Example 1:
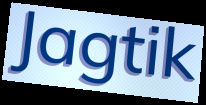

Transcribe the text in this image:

Jagtik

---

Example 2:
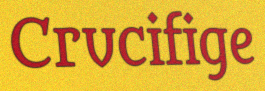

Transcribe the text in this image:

Crucifige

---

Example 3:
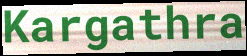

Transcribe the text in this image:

Kargathra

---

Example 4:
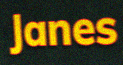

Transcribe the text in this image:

Janes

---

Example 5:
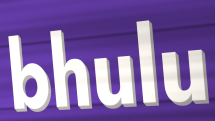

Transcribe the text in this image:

bhulu